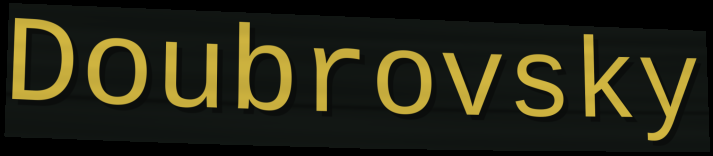
Doubrovsky